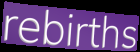
rebirths